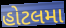
હોટલમા